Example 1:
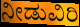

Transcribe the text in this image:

ನೀಡುವಿರಿ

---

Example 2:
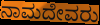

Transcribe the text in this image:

ನಾಮದೇವರು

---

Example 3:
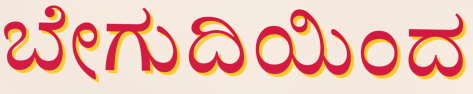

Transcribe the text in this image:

ಬೇಗುದಿಯಿಂದ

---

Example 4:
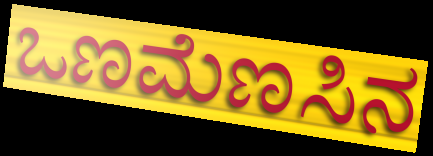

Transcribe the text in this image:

ಒಣಮೆಣಸಿನ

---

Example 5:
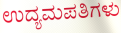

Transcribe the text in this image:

ಉದ್ಯಮಪತಿಗಳು